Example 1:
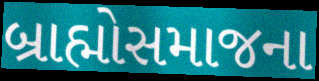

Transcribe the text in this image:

બ્રાહ્મોસમાજના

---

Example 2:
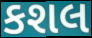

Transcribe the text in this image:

કશલ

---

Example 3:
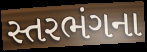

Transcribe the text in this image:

સ્તરભંગના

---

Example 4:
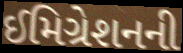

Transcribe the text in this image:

ઈમિગ્રેશનની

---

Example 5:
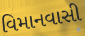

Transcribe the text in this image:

વિમાનવાસી